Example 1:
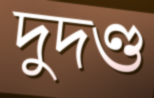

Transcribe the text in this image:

দুদণ্ড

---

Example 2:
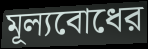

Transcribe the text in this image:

মূল্যবোধের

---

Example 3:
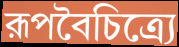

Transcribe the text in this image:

রূপবৈচিত্র্যে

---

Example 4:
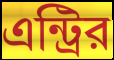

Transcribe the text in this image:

এন্ট্রির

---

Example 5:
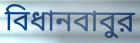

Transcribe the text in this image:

বিধানবাবুর